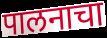
पालनाचा